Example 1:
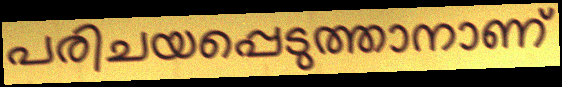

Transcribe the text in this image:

പരിചയപ്പെടുത്താനാണ്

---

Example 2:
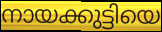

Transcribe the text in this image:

നായക്കുട്ടിയെ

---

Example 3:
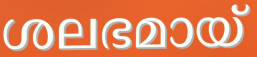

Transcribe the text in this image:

ശലഭമായ്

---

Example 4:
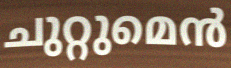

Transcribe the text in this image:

ചുറ്റുമെൻ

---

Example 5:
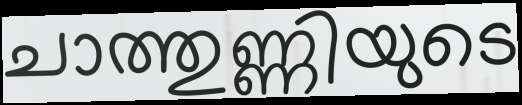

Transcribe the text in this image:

ചാത്തുണ്ണിയുടെ